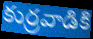
కుర్రవాడికి